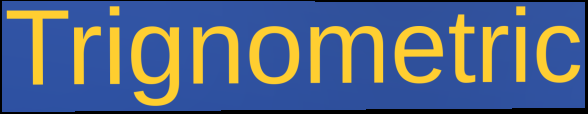
Trignometric